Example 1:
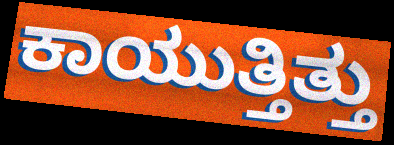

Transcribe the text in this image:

ಕಾಯುತ್ತಿತ್ತು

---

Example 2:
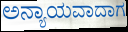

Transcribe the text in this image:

ಅನ್ಯಾಯವಾದಾಗ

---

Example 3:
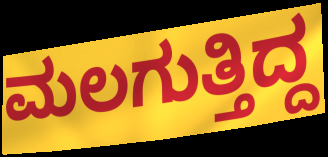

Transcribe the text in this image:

ಮಲಗುತ್ತಿದ್ದ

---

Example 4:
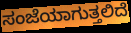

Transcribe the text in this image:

ಸಂಜೆಯಾಗುತ್ತಲಿದೆ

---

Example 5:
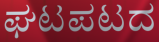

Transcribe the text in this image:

ಘಟಪಟದ